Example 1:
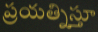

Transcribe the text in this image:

ప్రయత్నిస్తూ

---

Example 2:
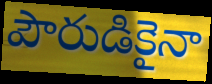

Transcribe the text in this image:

పౌరుడికైనా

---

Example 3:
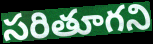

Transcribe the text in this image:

సరితూగని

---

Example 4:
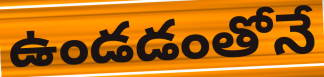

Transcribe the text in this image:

ఉండడంతోనే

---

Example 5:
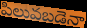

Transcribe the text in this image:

పిలువబడెనా